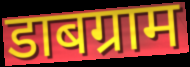
डाबग्राम